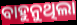
ବାହୁନୁଥିଲା